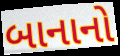
બાનાનો